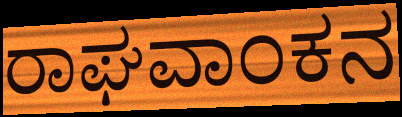
ರಾಘವಾಂಕನ